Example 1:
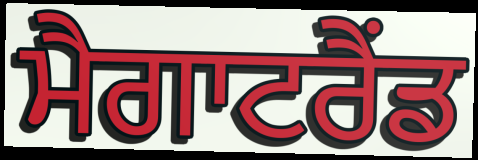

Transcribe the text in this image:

ਮੈਗਾਟਰੈਂਡ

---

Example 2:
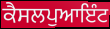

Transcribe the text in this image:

ਕੈਸਲਪੁਆਇੰਟ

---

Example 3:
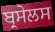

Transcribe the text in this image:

ਬ੍ਰਸੇਲਸ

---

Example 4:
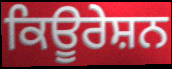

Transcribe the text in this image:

ਕਿਊਰੇਸ਼ਨ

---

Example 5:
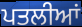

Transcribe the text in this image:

ਪਤਲੀਆਂ